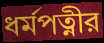
ধর্মপত্নীর